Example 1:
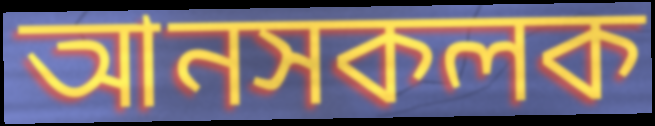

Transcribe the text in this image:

আনসকলক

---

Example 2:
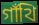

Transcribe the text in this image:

গাঁথি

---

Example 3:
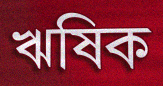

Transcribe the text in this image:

ঋষিক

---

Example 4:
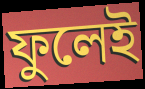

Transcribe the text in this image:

ফুলেই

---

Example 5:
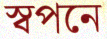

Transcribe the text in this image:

স্বপনে